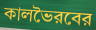
কালভৈরবের